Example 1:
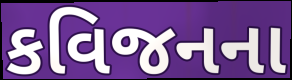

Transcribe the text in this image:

કવિજનના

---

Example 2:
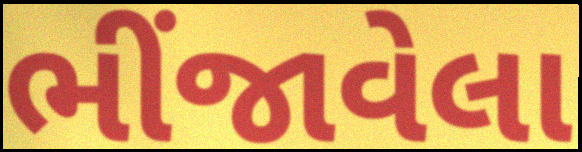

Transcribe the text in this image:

ભીંજાવેલા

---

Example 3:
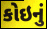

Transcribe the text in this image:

કોઇનું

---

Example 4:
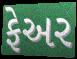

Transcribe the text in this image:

ફેઅર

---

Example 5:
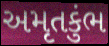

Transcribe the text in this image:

અમૃતકુંભ